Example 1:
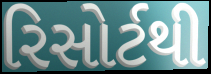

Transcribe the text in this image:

રિસોર્ટથી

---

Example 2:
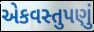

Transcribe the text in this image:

એકવસ્તુપણું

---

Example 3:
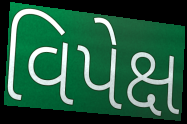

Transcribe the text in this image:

વિપેક્ષ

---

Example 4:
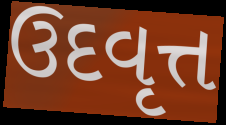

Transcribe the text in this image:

ઉદવૃત્ત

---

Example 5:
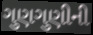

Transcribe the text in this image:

ગુણગુણીની